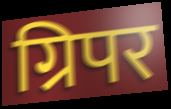
ग्रिपर